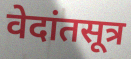
वेदांतसूत्र